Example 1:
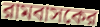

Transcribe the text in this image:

রামবাসকের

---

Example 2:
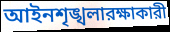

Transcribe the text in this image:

আইনশৃঙ্খলারক্ষাকারী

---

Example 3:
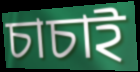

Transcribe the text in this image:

চাচাই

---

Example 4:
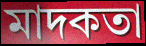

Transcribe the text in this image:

মাদকতা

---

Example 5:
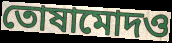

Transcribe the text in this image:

তোষামোদও